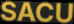
SACU